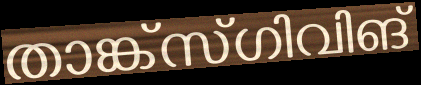
താങ്ക്സ്ഗിവിങ്